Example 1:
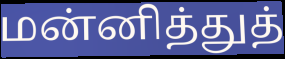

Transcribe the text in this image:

மன்னித்துத்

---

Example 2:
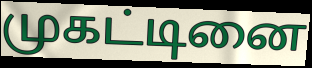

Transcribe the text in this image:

முகட்டினை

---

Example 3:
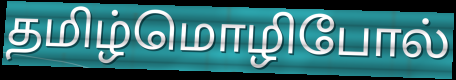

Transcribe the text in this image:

தமிழ்மொழிபோல்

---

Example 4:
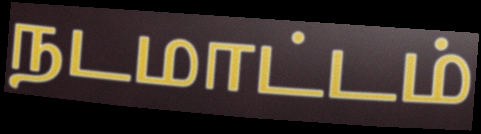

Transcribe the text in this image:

நடமாட்டம்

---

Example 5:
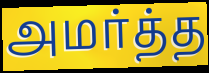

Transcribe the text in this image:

அமர்த்த